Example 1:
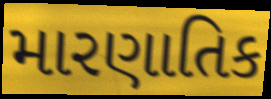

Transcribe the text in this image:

મારણાતિક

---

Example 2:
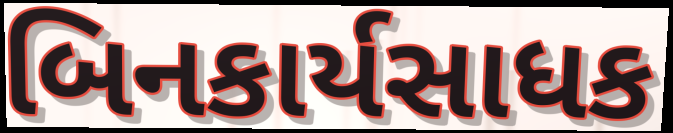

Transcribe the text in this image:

બિનકાર્યસાધક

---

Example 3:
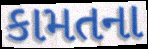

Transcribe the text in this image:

કામતના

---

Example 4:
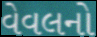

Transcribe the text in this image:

વેવલનો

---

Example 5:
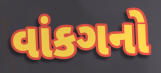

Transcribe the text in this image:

વાંકગનો